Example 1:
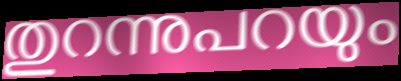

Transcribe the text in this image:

തുറന്നുപറയും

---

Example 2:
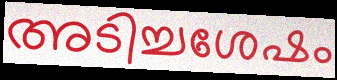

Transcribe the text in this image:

അടിച്ചശേഷം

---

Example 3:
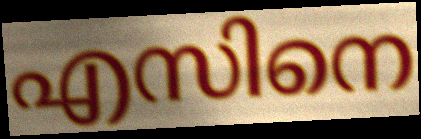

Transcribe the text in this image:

എസിനെ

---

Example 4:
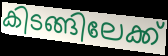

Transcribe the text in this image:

കിടങ്ങിലേക്ക്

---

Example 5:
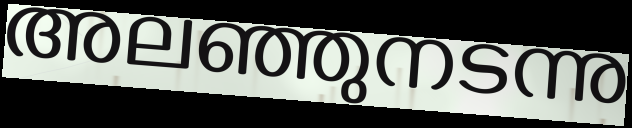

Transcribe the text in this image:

അലഞ്ഞുനടന്നു